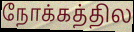
நோக்கத்தில